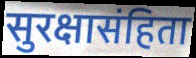
सुरक्षासंहिता